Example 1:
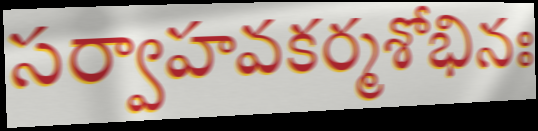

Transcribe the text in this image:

సర్వాహవకర్మశోభినః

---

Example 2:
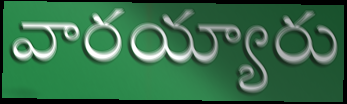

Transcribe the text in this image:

వారయ్యారు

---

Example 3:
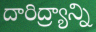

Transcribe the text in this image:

దారిద్ర్యాన్ని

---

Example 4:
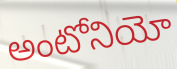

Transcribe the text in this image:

అంటోనియో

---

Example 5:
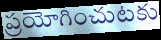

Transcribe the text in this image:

ప్రయోగించుటకు